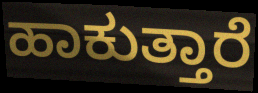
ಹಾಕುತ್ತಾರೆ